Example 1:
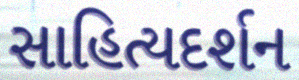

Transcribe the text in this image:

સાહિત્યદર્શન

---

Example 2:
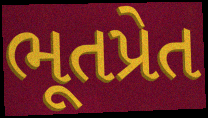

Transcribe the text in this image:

ભૂતપ્રેત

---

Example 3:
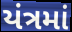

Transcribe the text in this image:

યંત્રમાં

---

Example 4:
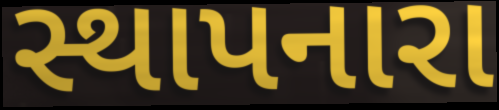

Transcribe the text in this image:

સ્થાપનારા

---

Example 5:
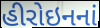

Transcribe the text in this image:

હીરોઇનનાં